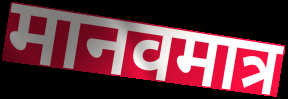
मानवमात्र